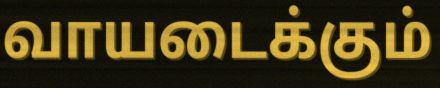
வாயடைக்கும்